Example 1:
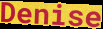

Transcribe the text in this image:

Denise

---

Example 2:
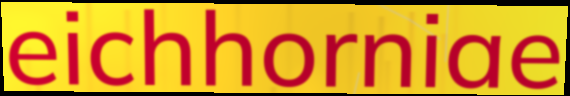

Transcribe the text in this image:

eichhorniae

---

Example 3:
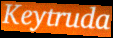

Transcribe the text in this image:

Keytruda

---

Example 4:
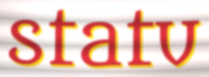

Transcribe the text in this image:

statu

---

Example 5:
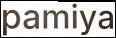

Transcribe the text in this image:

pamiya